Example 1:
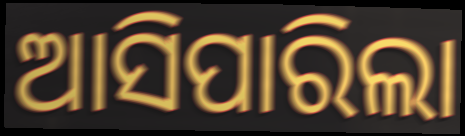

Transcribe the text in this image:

ଆସିପାରିଲା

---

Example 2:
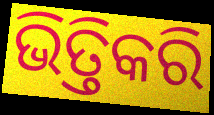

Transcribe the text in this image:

ଭିତ୍ତିକରି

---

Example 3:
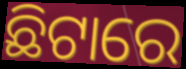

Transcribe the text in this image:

ଛିଟାରେ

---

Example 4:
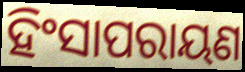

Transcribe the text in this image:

ହିଂସାପରାୟଣ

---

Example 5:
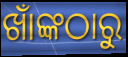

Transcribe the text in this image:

ଖାଁଙ୍କଠାରୁ